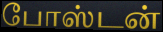
போஸ்டன்